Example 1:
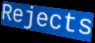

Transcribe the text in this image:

Rejects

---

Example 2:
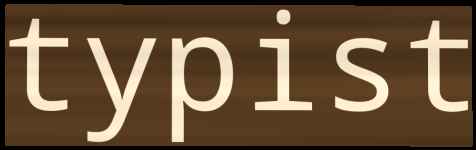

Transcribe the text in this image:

typist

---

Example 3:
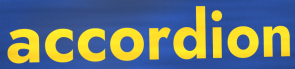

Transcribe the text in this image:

accordion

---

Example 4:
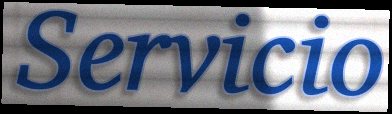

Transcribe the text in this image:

Servicio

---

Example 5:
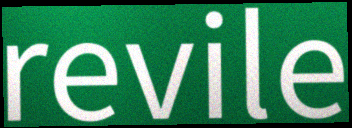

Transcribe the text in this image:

revile